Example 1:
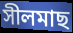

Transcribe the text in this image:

সীলমাছ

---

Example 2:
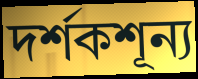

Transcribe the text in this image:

দর্শকশূন্য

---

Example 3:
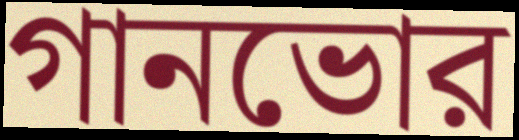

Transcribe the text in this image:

গানভোর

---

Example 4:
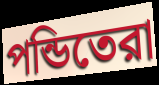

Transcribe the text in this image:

পন্ডিতেরা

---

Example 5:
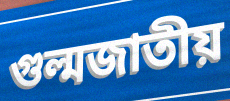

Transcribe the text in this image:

গুল্মজাতীয়